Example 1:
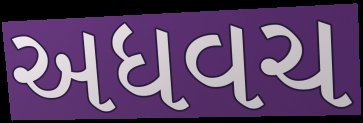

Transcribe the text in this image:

અધવચ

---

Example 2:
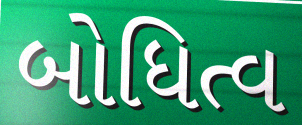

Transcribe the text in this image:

બોધિત્વ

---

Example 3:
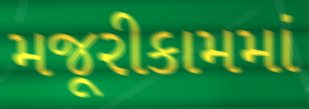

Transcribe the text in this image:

મજૂરીકામમાં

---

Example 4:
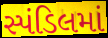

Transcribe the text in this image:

સ્પંડિલમાં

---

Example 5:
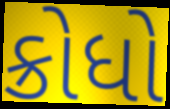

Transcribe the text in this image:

ક્રોધો